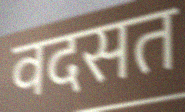
वदसत